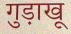
गुड़ाखू